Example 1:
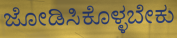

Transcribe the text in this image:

ಜೋಡಿಸಿಕೊಳ್ಳಬೇಕು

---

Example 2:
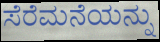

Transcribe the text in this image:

ಸೆರೆಮನೆಯನ್ನು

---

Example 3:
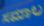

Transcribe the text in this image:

ಸಮಾಲ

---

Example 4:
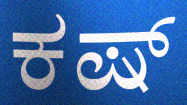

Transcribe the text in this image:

ಕಷ್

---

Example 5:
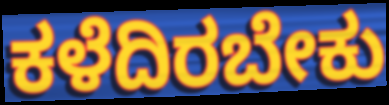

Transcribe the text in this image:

ಕಳೆದಿರಬೇಕು